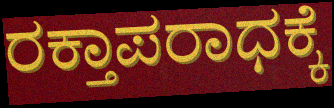
ರಕ್ತಾಪರಾಧಕ್ಕೆ